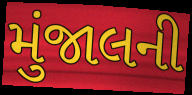
મુંજાલની